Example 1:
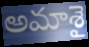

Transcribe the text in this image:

అమాశై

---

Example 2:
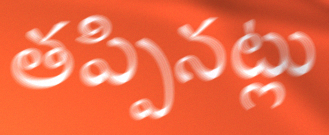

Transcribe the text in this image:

తప్పినట్లు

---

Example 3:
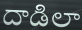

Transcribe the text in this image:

దాడిలా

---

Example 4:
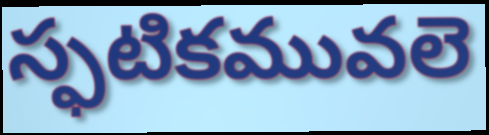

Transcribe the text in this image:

స్ఫటికమువలె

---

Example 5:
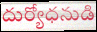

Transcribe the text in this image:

దుర్యోధనుడి